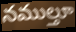
నముల్తూ